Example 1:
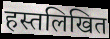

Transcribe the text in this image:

हस्तलिखित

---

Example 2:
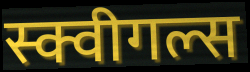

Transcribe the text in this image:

स्क्वीगल्स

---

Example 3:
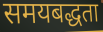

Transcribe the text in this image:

समयबद्धता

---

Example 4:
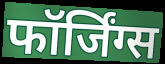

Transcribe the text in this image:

फॉर्जिंग्स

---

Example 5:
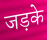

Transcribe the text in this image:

जड़के